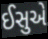
ઈસુએ